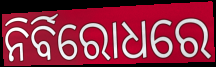
ନିର୍ବିରୋଧରେ